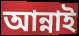
আন্নাই